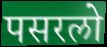
पसरलो